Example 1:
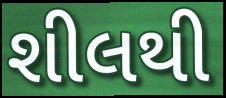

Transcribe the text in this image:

શીલથી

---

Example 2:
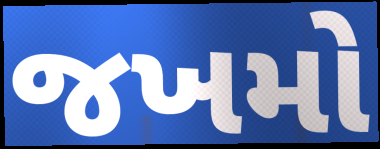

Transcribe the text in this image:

જખમો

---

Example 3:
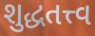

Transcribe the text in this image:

શુદ્ધતત્ત્વ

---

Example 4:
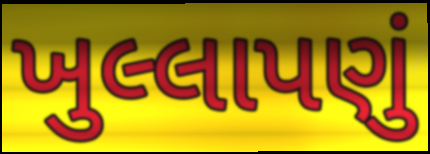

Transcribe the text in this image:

ખુલ્લાપણું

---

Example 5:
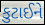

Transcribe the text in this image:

કુટાઈને